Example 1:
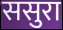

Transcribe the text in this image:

ससुरा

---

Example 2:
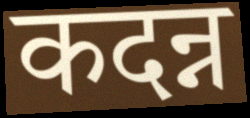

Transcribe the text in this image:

कदन्न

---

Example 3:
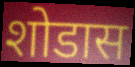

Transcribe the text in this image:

शोडास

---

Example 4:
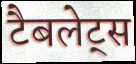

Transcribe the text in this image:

टैबलेट्स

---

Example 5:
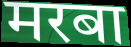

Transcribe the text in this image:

मरबा